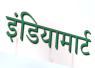
इंडियामार्ट